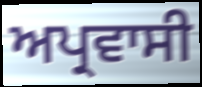
ਅਪ੍ਰਵਾਸੀ